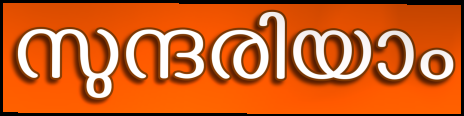
സുന്ദരിയാം